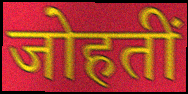
जोहतीं